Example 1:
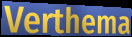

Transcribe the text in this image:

Verthema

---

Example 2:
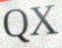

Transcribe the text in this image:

QX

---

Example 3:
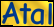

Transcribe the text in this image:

Atal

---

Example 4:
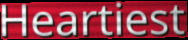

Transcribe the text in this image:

Heartiest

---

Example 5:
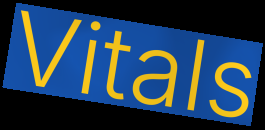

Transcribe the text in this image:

Vitals